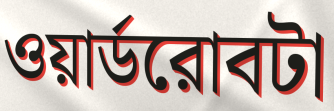
ওয়ার্ডরোবটা